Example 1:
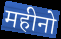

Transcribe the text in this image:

महीनो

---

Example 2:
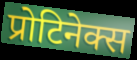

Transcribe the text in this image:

प्रोटिनेक्स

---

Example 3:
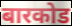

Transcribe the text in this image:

बारकोड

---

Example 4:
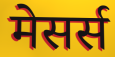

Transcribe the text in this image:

मेसर्स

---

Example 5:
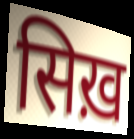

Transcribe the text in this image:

सिख़